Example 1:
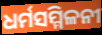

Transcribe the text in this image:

ଧର୍ମସମ୍ମିଳନୀ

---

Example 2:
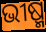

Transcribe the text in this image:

ଭୀଷ୍ମ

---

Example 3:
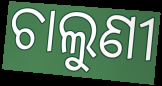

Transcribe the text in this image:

ଚାଲୁଣୀ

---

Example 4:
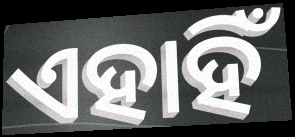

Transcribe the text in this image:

ଏହାହିଁ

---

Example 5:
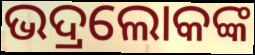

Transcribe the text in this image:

ଭଦ୍ରଲୋକଙ୍କ